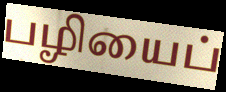
பழியைப்